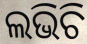
ଲଭିଚି